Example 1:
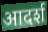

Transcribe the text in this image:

आदर्श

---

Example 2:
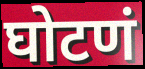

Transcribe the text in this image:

घोटणं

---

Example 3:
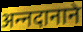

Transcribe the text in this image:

अन्नदानाने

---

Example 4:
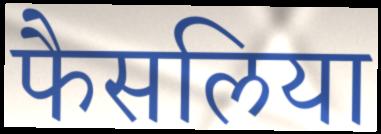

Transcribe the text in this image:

फैसलिया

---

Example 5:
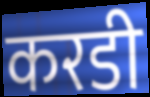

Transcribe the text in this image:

करडी